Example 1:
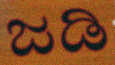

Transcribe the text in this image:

ಜಡಿ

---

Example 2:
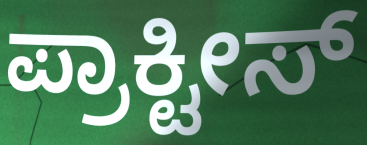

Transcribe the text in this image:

ಪ್ರಾಕ್ಟೀಸ್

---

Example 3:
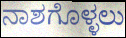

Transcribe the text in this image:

ನಾಶಗೊಳ್ಳಲು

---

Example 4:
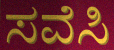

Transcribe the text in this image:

ಸವೆಸಿ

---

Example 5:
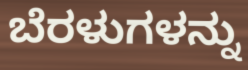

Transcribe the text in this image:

ಬೆರಳುಗಳನ್ನು